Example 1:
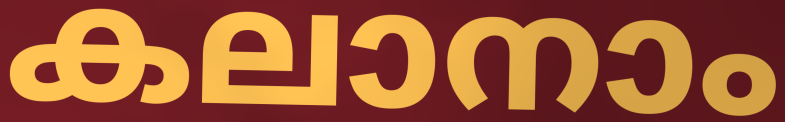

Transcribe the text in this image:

കലാനാം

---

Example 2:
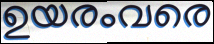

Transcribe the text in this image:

ഉയരംവരെ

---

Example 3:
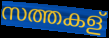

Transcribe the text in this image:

സത്തകള്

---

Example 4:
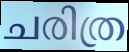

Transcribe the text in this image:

ചരിത്ര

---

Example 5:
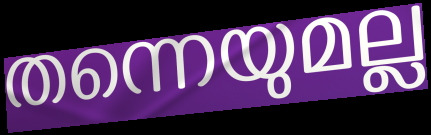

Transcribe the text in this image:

തന്നെയുമല്ല